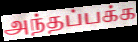
அந்தப்பக்க